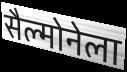
सैल्मोनेला